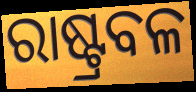
ରାଷ୍ଟ୍ରବଳ